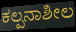
ಕಲ್ಪನಾಶೀಲ